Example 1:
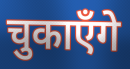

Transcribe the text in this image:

चुकाएँगे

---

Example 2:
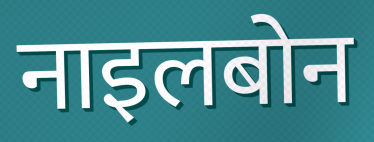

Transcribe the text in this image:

नाइलबोन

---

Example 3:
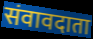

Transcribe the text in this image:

संवावदाता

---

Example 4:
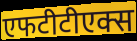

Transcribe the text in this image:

एफटीटीएक्स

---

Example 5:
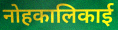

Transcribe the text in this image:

नोहकालिकाई